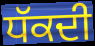
ਧੱਕਦੀ